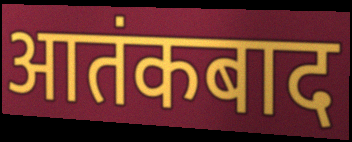
आतंकबाद